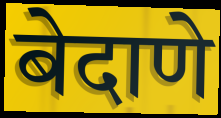
बेदाणे